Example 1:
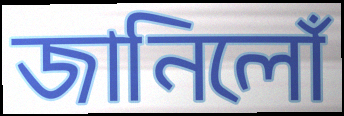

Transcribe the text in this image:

জানিলোঁ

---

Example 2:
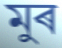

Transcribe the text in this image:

মুৰ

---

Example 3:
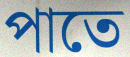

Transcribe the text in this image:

পাতে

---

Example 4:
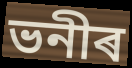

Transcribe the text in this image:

ভনীৰ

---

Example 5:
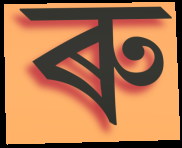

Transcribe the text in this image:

ৰু